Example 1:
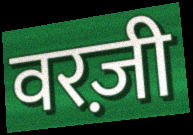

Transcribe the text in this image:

वरज़ी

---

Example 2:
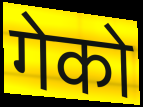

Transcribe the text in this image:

गेको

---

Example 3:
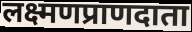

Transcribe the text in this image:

लक्ष्मणप्राणदाता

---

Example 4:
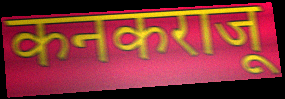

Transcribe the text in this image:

कनकराजू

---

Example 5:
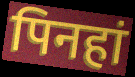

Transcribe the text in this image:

पिनहां